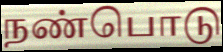
நண்பொடு